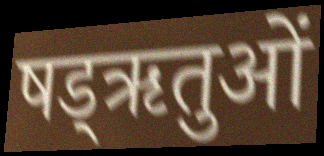
षड्ऋतुओं